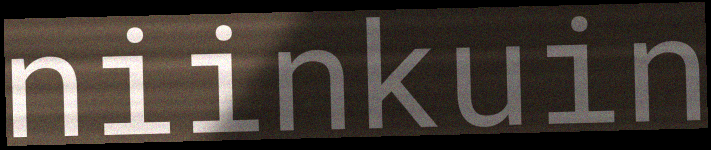
niinkuin